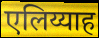
एलिय्याह